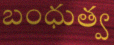
బంధుత్వ